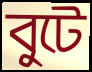
বুটে